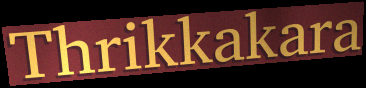
Thrikkakara